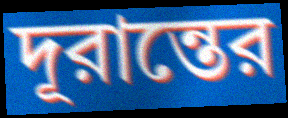
দূরান্তের